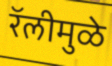
रॅलीमुळे